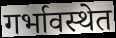
गर्भावस्थेत